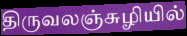
திருவலஞ்சுழியில்